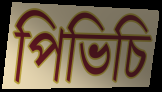
পিভিচি